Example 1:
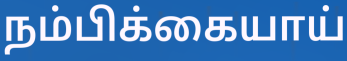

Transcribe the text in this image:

நம்பிக்கையாய்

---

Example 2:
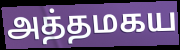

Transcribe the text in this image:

அத்தமகய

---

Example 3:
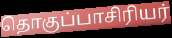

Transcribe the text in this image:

தொகுப்பாசிரியர்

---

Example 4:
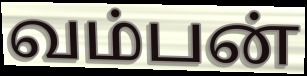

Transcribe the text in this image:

வம்பன்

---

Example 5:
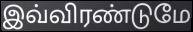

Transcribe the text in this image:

இவ்விரண்டுமே